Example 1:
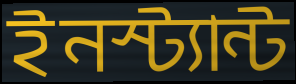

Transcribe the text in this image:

ইনস্ট্যান্ট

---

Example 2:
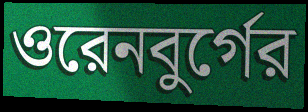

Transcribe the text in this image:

ওরেনবুর্গের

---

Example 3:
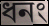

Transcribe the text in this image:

ধনং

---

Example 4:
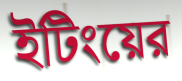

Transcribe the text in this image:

ইটিংয়ের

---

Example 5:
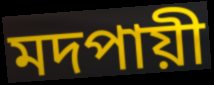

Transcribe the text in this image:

মদপায়ী